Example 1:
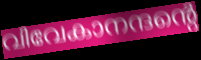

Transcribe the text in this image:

വിവേകാനന്ദന്റെ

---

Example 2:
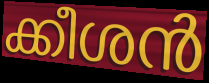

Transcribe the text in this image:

ക്കീശൻ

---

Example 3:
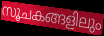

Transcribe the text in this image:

സൂചകങ്ങളിലും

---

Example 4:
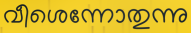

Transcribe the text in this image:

വീശെന്നോതുന്നു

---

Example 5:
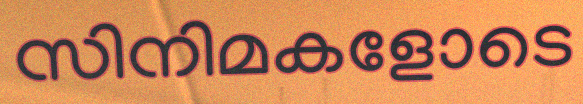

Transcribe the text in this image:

സിനിമകളോടെ